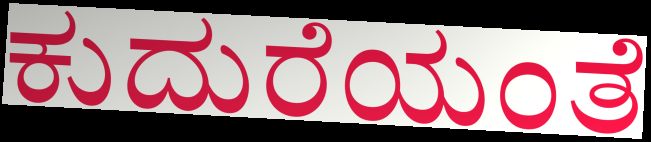
ಕುದುರೆಯಂತೆ